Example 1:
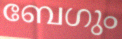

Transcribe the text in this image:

ബേഗും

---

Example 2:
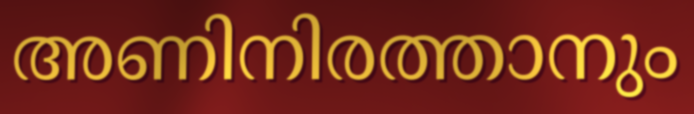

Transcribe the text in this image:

അണിനിരത്താനും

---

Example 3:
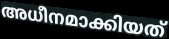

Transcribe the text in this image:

അധീനമാക്കിയത്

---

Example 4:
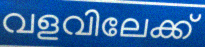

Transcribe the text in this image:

വളവിലേക്ക്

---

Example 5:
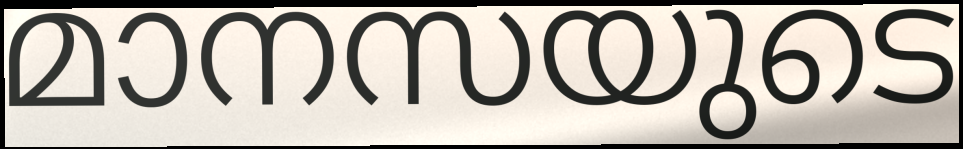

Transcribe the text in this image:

മാനസയുടെ